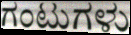
ಗಂಟುಗಳು